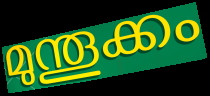
മുന്തൂക്കം